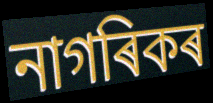
নাগৰিকৰ